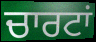
ਚਾਰਟਾਂ